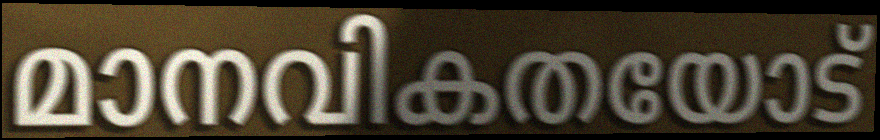
മാനവികതയോട്